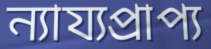
ন্যায্যপ্রাপ্য